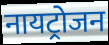
नायट्रोजन